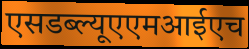
एसडब्ल्यूएएमआईएच